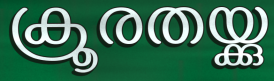
ക്രൂരതയ്ക്കു